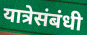
यात्रेसंबंधी